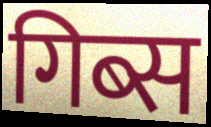
गिब्स